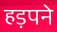
हड़पने